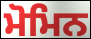
ਮੋਮਿਨ